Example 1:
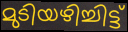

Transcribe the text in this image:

മുടിയഴിച്ചിട്ട്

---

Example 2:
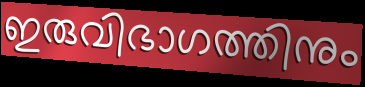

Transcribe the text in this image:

ഇരുവിഭാഗത്തിനും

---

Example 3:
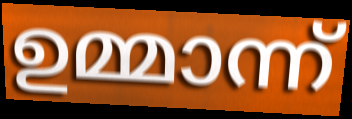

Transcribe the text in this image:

ഉമ്മാന്ന്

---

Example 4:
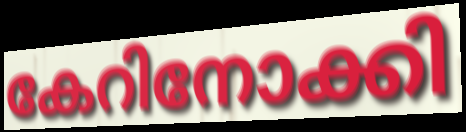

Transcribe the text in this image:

കേറിനോക്കി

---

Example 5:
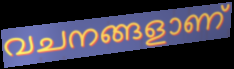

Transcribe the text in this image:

വചനങ്ങളാണ്